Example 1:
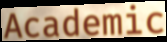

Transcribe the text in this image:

Academic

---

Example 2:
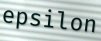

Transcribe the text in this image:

epsilon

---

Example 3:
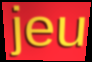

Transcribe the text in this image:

jeu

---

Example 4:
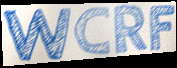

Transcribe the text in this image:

WCRF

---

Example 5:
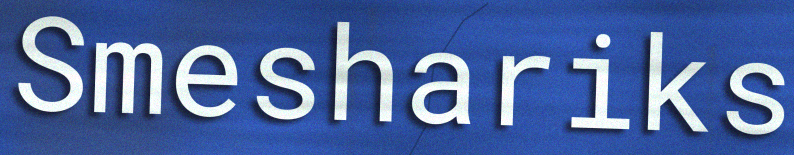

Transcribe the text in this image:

Smeshariks